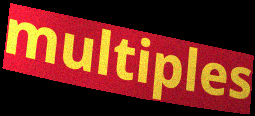
multiples